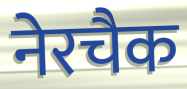
नेरचैक